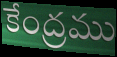
కేంద్రము